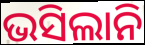
ଭସିଲାନି